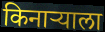
किनाऱ्याला